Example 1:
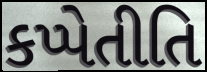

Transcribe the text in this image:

કપ્પેતીતિ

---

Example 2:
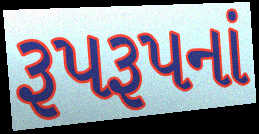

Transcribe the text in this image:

રૂપરૂપનાં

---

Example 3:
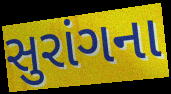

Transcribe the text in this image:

સુરાંગના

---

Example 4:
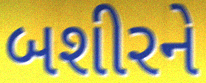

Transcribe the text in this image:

બશીરને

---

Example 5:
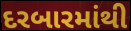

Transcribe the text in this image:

દરબારમાંથી